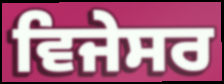
ਵਿਜੇਸਰ